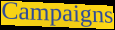
Campaigns